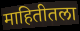
माहितीतला